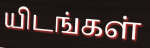
யிடங்கள்